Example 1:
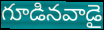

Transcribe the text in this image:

గూడినవాడై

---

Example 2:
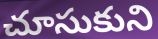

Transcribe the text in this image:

చూసుకుని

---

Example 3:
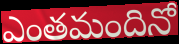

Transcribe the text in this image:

ఎంతమందినో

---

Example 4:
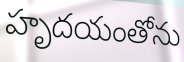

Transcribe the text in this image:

హృదయంతోను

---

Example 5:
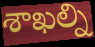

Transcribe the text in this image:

శాఖల్ని